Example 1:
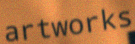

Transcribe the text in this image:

artworks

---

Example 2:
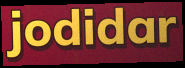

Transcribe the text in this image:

jodidar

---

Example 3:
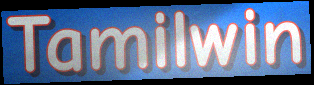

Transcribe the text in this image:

Tamilwin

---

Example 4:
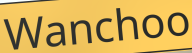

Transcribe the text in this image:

Wanchoo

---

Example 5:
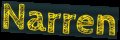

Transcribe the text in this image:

Narren